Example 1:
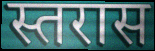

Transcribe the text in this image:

स्तरास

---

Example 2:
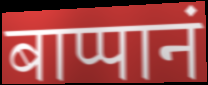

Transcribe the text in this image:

बाप्पानं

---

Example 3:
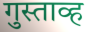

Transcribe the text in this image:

गुस्ताव्ह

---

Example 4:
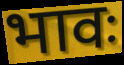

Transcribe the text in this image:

भावः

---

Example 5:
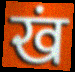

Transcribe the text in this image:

खं